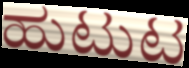
ಹುಟುಟ